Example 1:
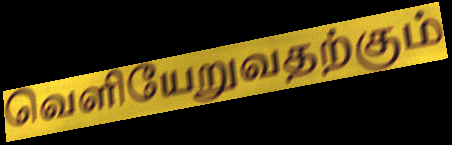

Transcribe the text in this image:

வெளியேறுவதற்கும்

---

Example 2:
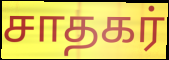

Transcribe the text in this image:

சாதகர்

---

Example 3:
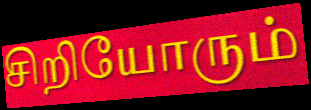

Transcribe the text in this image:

சிறியோரும்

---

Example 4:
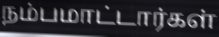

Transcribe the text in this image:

நம்பமாட்டார்கள்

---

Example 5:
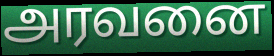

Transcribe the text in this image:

அரவனை